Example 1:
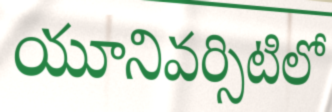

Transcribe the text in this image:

యూనివర్సిటిలో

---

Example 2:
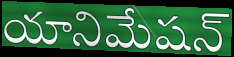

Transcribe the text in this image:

యానిమేషన్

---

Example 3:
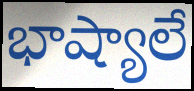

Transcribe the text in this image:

భాష్యాలే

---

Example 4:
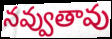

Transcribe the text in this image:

నవ్వుతావు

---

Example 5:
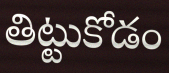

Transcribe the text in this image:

తిట్టుకోడం